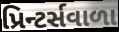
પ્રિન્ટર્સવાળા